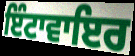
ਇੰਟਾਵਾਇਰ